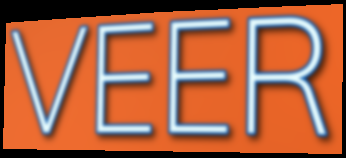
VEER